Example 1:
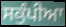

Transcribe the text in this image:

ਸਕੁੰਪੀਆ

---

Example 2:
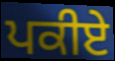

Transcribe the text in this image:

ਪਕੀਏ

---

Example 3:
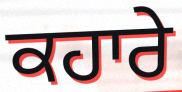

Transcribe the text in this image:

ਕਹਾਰੇ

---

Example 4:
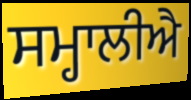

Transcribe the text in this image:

ਸਮ੍ਹ੍ਹਾਲੀਐ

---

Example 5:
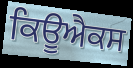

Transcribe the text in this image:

ਕਿਊਐਕਸ